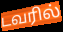
டவரில்